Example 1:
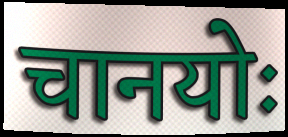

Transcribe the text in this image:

चानयोः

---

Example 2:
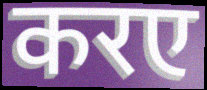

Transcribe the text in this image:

करए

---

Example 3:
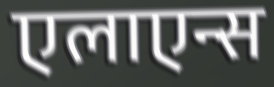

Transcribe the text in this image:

एलाएन्स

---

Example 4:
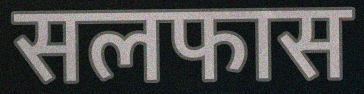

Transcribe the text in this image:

सलफास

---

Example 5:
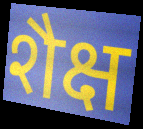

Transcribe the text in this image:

शैक्ष